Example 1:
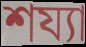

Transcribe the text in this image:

শয্যা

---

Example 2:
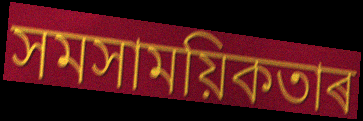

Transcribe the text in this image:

সমসাময়িকতাৰ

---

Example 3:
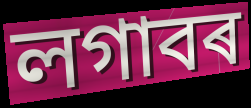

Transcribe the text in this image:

লগাবৰ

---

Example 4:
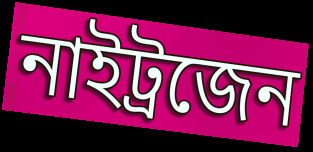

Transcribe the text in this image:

নাইট্ৰজেন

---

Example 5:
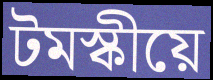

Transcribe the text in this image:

টমস্কীয়ে